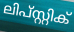
ലിപ്സ്റ്റിക്